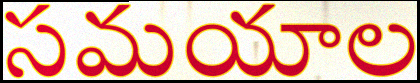
సమయాల